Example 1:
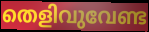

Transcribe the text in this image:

തെളിവുവേണ്ട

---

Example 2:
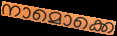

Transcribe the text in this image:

നാമൊക്കെ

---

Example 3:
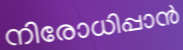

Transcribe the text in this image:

നിരോധിപ്പാൻ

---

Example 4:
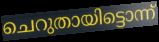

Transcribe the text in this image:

ചെറുതായിട്ടൊന്ന്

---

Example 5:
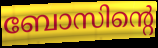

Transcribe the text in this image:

ബോസിന്റെ